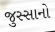
જુસ્સાનો